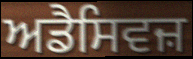
ਅਡੈਸਿਵਜ਼